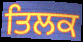
ਤਿਲਕ